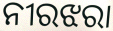
ନୀରଝରା